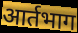
आर्तभाग